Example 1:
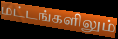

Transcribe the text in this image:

மட்டங்களிலும்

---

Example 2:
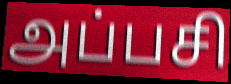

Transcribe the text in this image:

அப்பசி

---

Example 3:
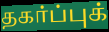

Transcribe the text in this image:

தகர்ப்புக்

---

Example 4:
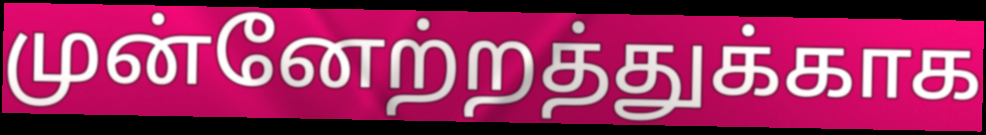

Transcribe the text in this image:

முன்னேற்றத்துக்காக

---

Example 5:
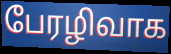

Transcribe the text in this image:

பேரழிவாக